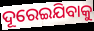
ଦୂରେଇଯିବାକୁ